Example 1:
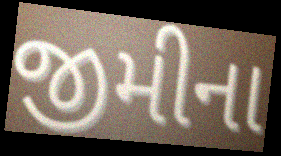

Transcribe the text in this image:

જીમીના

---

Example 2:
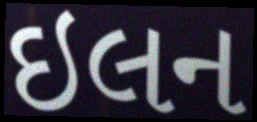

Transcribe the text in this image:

ઇલન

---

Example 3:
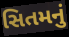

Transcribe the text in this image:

સિતમનું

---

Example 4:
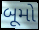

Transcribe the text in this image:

બૂમો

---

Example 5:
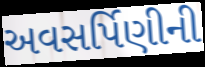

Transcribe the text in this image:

અવસર્પિણીની